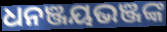
ଧନଞ୍ଜୟଭଞ୍ଜଙ୍କ